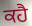
ਕਹੈ